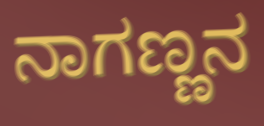
ನಾಗಣ್ಣನ